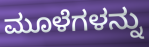
ಮೂಳೆಗಳನ್ನು